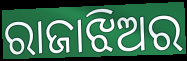
ରାଜାଝିଅର